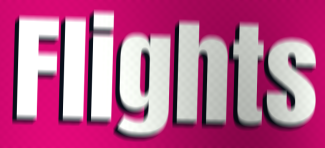
Flights